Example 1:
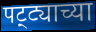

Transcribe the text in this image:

पट्ट्याच्या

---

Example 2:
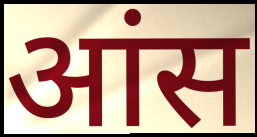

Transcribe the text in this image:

आंस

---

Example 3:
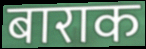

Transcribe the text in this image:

बाराक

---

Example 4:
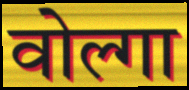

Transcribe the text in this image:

वोल्गा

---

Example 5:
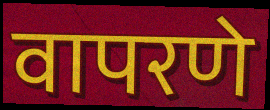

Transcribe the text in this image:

वापरणे